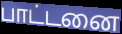
பாட்டனை